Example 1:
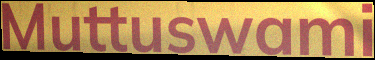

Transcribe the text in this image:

Muttuswami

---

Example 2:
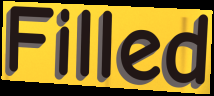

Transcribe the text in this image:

Filled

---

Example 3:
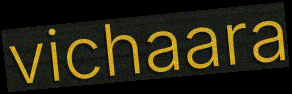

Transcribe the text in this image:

vichaara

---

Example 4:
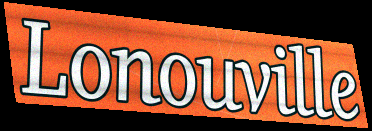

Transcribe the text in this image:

Lonouville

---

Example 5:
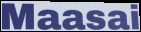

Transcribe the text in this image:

Maasai